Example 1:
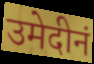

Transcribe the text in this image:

उमेदीनं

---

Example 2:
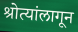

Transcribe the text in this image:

श्रोत्यांलागून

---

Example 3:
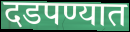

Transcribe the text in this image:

दडपण्यात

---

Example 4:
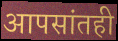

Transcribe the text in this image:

आपसांतही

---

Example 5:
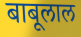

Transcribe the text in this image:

बाबूलाल